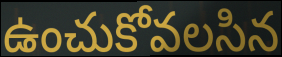
ఉంచుకోవలసిన